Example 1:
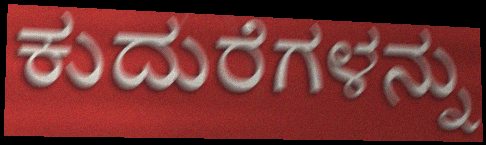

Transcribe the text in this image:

ಕುದುರೆಗಳನ್ನು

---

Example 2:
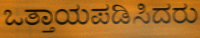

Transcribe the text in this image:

ಒತ್ತಾಯಪಡಿಸಿದರು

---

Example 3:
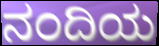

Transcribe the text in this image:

ನಂದಿಯ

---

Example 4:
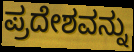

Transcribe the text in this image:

ಪ್ರದೇಶವನ್ನು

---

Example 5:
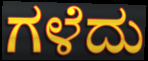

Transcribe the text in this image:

ಗಳೆದು